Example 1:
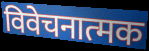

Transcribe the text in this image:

विवेचनात्‍मक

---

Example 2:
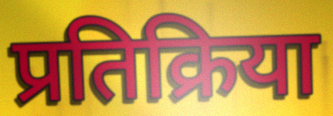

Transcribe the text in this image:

प्रतिक्रिया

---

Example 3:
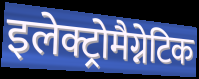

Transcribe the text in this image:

इलेक्ट्रोमैग्नेटिक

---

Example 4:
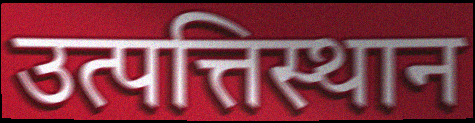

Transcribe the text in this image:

उत्पत्तिस्थान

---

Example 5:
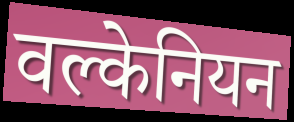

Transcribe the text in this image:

वल्केनियन